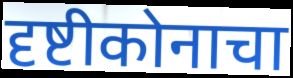
दृष्टीकोनाचा